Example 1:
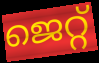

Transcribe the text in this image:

ജെറ്റ്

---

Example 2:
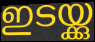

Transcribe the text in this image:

ഇടയ്ക്കു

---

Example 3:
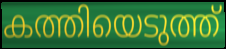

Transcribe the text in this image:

കത്തിയെടുത്ത്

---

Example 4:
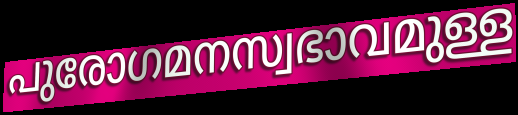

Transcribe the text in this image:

പുരോഗമനസ്വഭാവമുള്ള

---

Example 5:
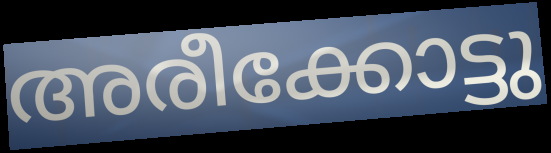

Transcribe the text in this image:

അരീക്കോട്ടു